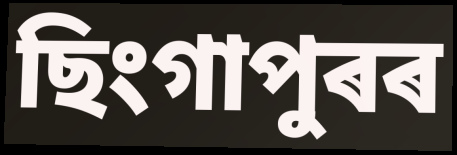
ছিংগাপুৰৰ